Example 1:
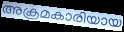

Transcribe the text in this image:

അക്രമകാരിയായ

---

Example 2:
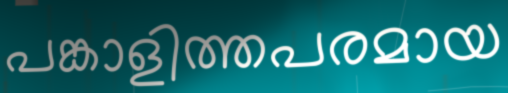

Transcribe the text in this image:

പങ്കാളിത്തപരമായ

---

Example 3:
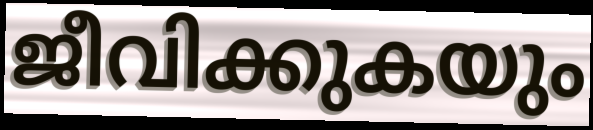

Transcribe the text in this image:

ജീവിക്കുകയും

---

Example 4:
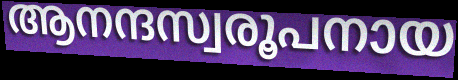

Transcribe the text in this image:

ആനന്ദസ്വരൂപനായ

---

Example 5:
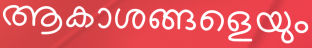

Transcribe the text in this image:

ആകാശങ്ങളെയും